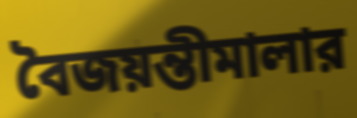
বৈজয়ন্তীমালার